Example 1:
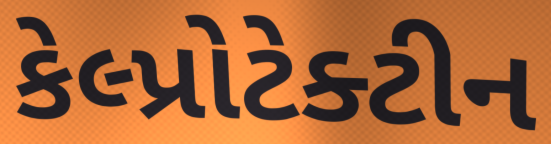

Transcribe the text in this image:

કેલ્પ્રોટેક્ટીન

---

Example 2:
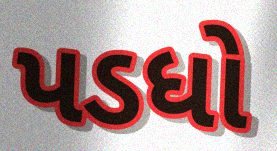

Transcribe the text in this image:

પડધો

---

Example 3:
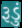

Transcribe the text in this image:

રૂડું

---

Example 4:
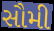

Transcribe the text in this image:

સૌમી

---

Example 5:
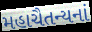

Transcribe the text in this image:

મહાચૈતન્યનાં